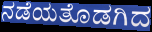
ನಡೆಯತೊಡಗಿದ